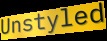
Unstyled